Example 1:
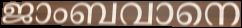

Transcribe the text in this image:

ജാംബവാനെ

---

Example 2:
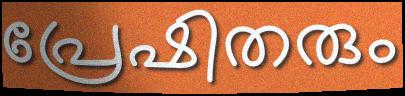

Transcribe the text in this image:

പ്രേഷിതരും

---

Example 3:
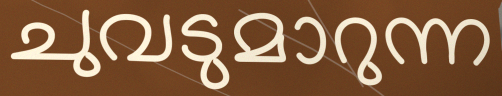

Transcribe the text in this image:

ചുവടുമാറുന്ന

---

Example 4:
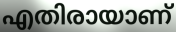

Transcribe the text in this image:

എതിരായാണ്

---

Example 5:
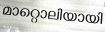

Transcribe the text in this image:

മാറ്റൊലിയായി